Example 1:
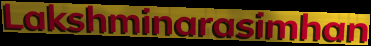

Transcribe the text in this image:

Lakshminarasimhan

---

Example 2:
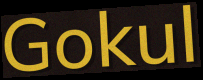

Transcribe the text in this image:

Gokul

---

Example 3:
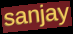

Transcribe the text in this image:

sanjay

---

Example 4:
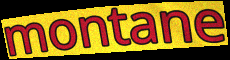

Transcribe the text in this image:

montane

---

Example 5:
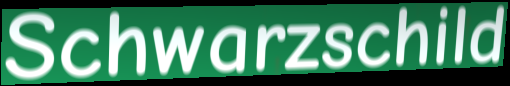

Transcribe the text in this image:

Schwarzschild